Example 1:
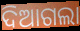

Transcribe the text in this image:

ଦିଆଗଲା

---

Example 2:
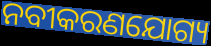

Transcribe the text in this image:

ନବୀକରଣଯୋଗ୍ୟ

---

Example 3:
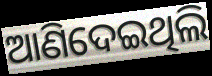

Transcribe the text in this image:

ଆଣିଦେଇଥିଲି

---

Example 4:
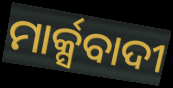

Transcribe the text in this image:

ମାର୍କ୍ସବାଦୀ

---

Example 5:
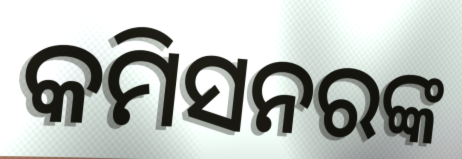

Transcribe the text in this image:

କମିସନରଙ୍କ